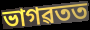
ভাগৱতত